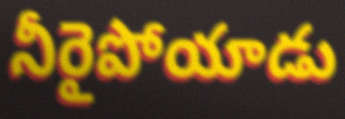
నీరైపోయాడు